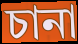
চানা